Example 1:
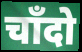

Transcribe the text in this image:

चाँदो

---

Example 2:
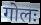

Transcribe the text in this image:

गोलः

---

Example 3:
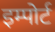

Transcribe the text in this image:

इम्पोर्ट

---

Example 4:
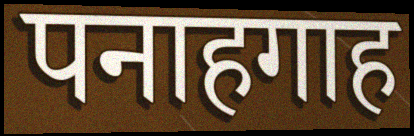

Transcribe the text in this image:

पनाहगाह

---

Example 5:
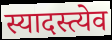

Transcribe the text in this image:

स्यादस्त्येव